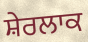
ਸ਼ੇਰਲਾਕ